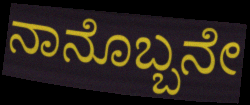
ನಾನೊಬ್ಬನೇ